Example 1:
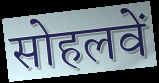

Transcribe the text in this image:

सोहलवें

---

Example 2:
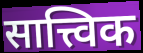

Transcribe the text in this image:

सात्त्विक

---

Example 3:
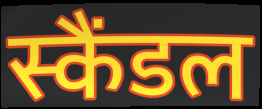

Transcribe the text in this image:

स्कैंडल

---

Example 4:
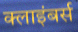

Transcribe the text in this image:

क्लाइंबर्स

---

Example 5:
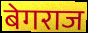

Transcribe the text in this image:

बेगराज